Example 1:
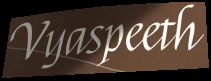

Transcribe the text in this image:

Vyaspeeth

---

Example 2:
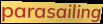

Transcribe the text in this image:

parasailing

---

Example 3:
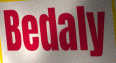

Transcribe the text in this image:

Bedaly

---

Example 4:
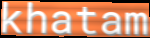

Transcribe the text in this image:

khatam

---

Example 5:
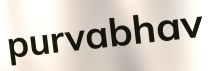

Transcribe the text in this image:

purvabhav